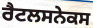
ਰੈਟਲਸਨੇਕਸ